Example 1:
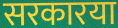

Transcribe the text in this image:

सरकारया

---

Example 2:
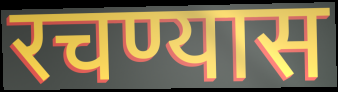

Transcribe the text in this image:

रचण्यास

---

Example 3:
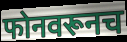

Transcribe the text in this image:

फोनवरूनच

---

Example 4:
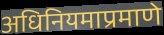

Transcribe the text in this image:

अधिनियमाप्रमाणे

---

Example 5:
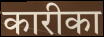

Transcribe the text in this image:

कारीका